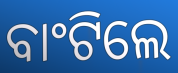
ବାଂଟିଲେ